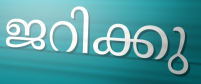
ജറിക്കു